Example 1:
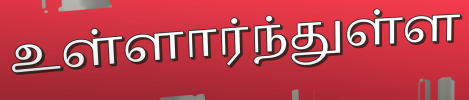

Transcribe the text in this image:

உள்ளார்ந்துள்ள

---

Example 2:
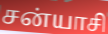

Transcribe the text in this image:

சன்யாசி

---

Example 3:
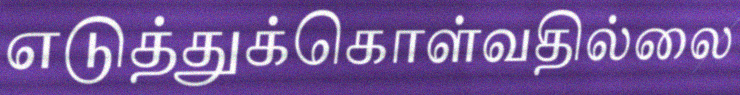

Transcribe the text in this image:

எடுத்துக்கொள்வதில்லை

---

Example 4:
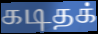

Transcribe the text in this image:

கடிதக்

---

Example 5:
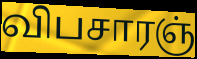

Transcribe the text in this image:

விபசாரஞ்